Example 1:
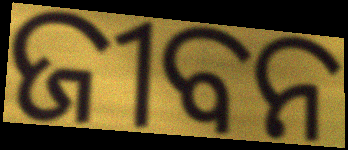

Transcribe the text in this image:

ଜୀବନ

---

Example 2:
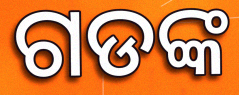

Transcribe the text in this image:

ଗଡଙ୍କ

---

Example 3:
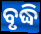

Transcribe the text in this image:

ବୃଦ୍ଧି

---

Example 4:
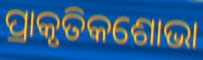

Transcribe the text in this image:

ପ୍ରାକୃତିକଶୋଭା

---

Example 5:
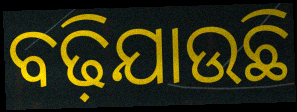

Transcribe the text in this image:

ବଢ଼ିଯାଉଛି